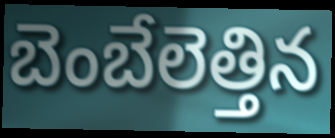
బెంబేలెత్తిన